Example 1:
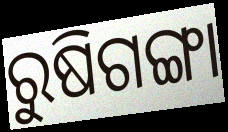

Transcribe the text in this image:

ରୁଷିଗଙ୍ଗା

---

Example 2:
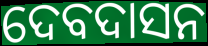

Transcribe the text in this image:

ଦେବଦାସନ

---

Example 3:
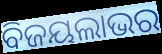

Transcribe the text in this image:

ବିଜୟଲାଭର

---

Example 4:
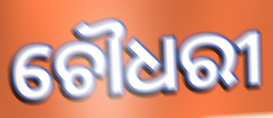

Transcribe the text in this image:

ଚୌଧରୀ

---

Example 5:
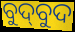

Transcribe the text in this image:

ବୁଦ୍‍ବୁଦ